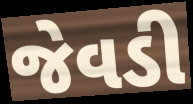
જેવડી